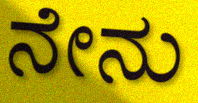
ನೇನು